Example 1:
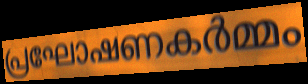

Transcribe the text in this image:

പ്രഘോഷണകർമ്മം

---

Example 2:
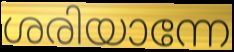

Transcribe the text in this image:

ശരിയാന്നേ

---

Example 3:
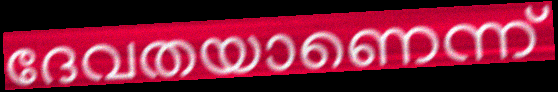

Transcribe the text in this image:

ദേവതയാണെന്ന്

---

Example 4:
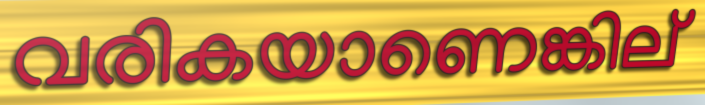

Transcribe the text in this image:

വരികയാണെങ്കില്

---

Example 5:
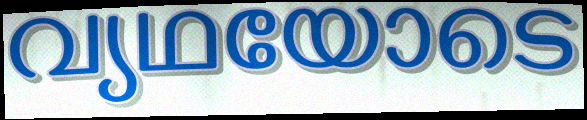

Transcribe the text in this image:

വ്യഥയോടെ